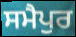
ਸਮੈਪੁਰ